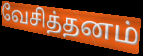
வேசித்தனம்